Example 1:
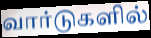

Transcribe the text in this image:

வார்டுகளில்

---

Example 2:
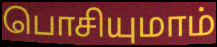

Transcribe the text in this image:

பொசியுமாம்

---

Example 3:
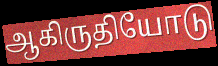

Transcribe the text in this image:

ஆகிருதியோடு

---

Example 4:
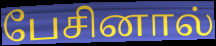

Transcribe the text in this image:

பேசினால்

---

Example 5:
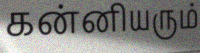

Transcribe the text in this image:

கன்னியரும்